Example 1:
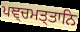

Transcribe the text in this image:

ਪਞ੍ਚਮਤ੍ਤਾਨਿ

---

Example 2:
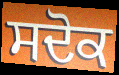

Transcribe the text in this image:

ਸਦੋਕ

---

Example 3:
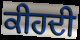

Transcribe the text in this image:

ਕੀਹਦੀ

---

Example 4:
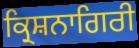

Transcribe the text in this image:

ਕ੍ਰਿਸ਼ਨਾਗਿਰੀ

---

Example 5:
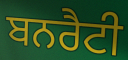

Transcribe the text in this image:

ਬਨਰੈਟੀ